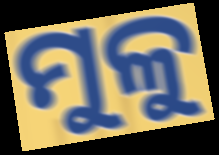
ମୁଳୁ